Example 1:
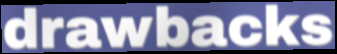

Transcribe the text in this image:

drawbacks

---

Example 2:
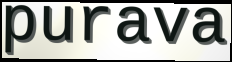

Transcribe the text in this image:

purava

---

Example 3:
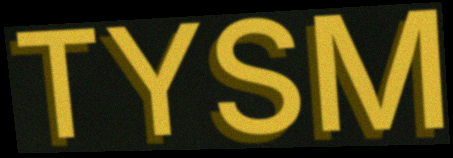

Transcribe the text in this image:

TYSM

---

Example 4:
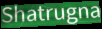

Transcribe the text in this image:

Shatrugna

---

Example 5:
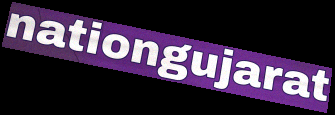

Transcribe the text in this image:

nationgujarat